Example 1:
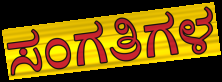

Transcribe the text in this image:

ಸಂಗತಿಗಳ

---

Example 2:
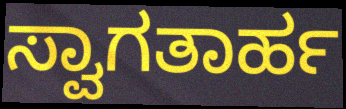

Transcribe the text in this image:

ಸ್ವಾಗತಾರ್ಹ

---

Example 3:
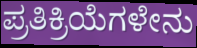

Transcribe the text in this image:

ಪ್ರತಿಕ್ರಿಯೆಗಳೇನು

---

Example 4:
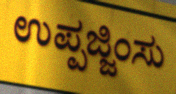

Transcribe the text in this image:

ಉಪ್ಪಜ್ಜಿಂಸು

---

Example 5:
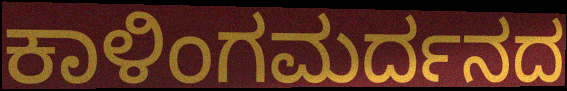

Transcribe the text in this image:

ಕಾಳಿಂಗಮರ್ದನದ